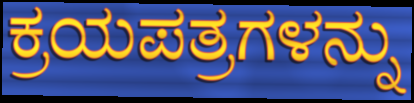
ಕ್ರಯಪತ್ರಗಳನ್ನು